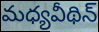
మధ్యవీథిన్